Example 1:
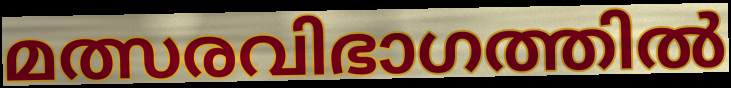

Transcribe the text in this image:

മത്സരവിഭാഗത്തിൽ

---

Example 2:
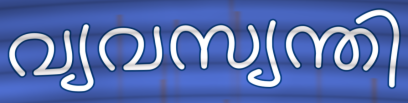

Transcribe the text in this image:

വ്യവസ്യന്തി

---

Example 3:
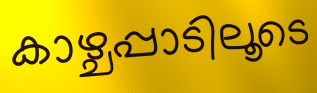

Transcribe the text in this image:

കാഴ്ചപ്പാടിലൂടെ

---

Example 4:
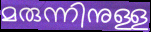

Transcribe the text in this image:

മരുന്നിനുള്ള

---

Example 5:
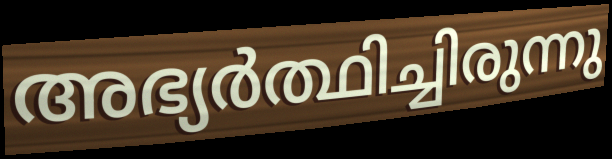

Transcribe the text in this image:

അഭ്യർത്ഥിച്ചിരുന്നു